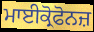
ਮਾਈਕ੍ਰੋਫੋਨਜ਼